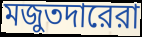
মজুতদারেরা